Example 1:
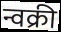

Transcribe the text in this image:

न्वक्री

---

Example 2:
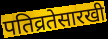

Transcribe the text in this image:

पतिव्रतेसारखी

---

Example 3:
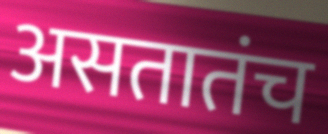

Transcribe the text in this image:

असतातंच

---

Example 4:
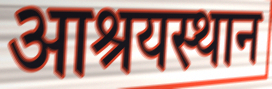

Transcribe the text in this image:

आश्रयस्थान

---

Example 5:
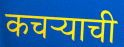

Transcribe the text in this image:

कचऱ्याची